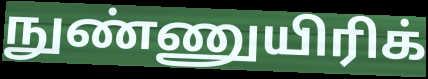
நுண்ணுயிரிக்